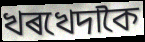
খৰখেদাকৈ